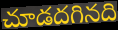
చూడదగినది